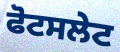
ਫੋਟਸਲੇਟ